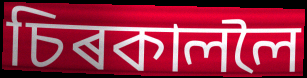
চিৰকাললৈ